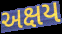
અક્ષય